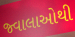
જ્વાલાઓથી